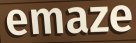
emaze